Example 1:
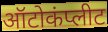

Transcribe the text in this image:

ऑटोकंप्लीट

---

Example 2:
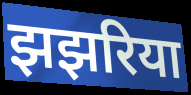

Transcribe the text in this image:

झझरिया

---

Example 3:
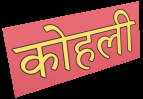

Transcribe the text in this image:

कोहली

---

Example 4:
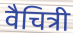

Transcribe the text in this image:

वैचित्री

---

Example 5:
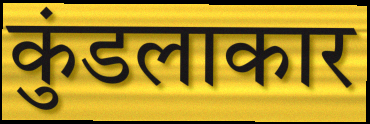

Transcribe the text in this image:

कुंडलाकार